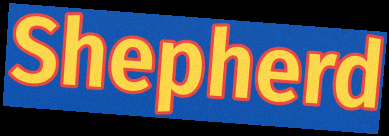
Shepherd